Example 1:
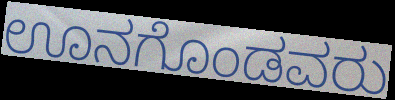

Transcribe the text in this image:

ಊನಗೊಂಡವರು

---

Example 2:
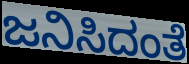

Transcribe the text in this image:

ಜನಿಸಿದಂತೆ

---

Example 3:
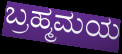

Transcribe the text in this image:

ಬ್ರಹ್ಮಮಯ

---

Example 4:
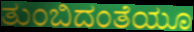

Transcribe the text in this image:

ತುಂಬಿದಂತೆಯೂ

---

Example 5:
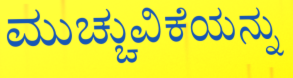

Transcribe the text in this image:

ಮುಚ್ಚುವಿಕೆಯನ್ನು